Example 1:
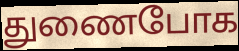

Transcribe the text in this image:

துணைபோக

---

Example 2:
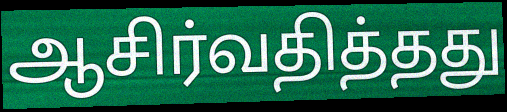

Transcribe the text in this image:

ஆசிர்வதித்தது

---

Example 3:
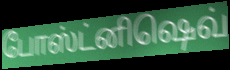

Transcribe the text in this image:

போஸ்ட்னிஷெவ்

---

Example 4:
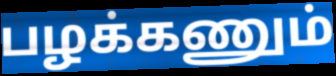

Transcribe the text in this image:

பழக்கணும்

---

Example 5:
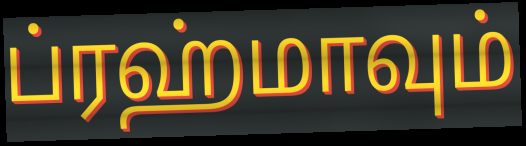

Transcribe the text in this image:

ப்ரஹ்மாவும்